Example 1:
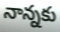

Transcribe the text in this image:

నాన్నకు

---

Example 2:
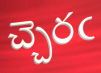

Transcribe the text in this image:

చ్చెరఁ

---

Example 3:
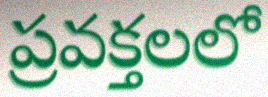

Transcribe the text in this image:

ప్రవక్తలలో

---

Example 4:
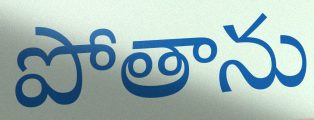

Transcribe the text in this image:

పోతాను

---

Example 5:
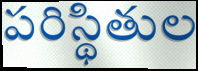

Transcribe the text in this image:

పరిస్థితుల